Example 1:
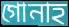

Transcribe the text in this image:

গোনাহ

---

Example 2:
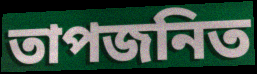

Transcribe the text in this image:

তাপজনিত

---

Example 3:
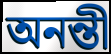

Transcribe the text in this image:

অনন্তী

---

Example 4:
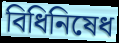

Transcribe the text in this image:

বিধিনিষেধ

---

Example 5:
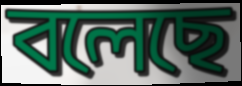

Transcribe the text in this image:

বলেছে